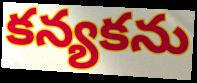
కన్యకను